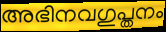
അഭിനവഗുപ്തനം